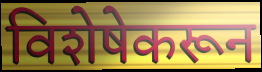
विशेषेकरून